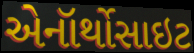
એનૉર્થોસાઇટ